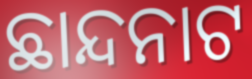
ଛାନ୍ଦନାଟ